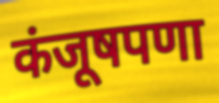
कंजूषपणा